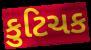
કુટિચક